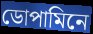
ডোপামিনে